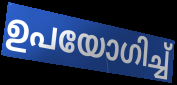
ഉപയോഗിച്ച്